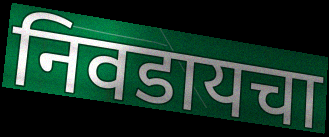
निवडायचा